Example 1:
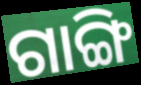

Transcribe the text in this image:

ଗାଙ୍ଗି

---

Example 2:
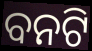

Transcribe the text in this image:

ବନଟି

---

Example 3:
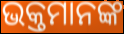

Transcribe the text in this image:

ଭକ୍ତମାନଙ୍କ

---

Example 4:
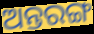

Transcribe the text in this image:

ଅନ୍ତରଙ୍ଗ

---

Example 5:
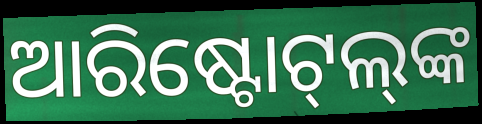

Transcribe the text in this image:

ଆରିଷ୍ଟୋଟ୍‌ଲ୍‌ଙ୍କ